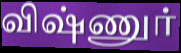
விஷ்ணுர்